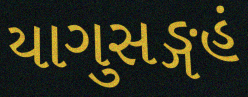
યાગુસઙ્ગહં